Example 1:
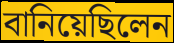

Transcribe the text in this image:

বানিয়েছিলেন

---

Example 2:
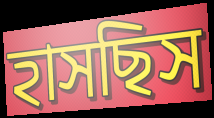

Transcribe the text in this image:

হাসছিস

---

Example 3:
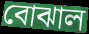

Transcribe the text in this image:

বোঝাল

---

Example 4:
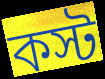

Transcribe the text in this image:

কস্ট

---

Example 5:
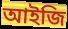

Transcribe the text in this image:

আইজি